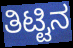
ತಿಟ್ಟಿನ